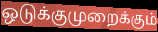
ஒடுக்குமுறைக்கும்